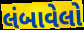
લંબાવેલો